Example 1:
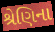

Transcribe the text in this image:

શ્રેણિના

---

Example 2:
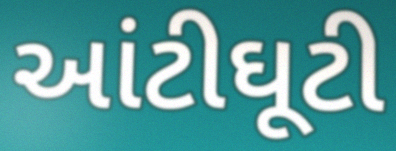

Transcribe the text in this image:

આંટીઘૂટી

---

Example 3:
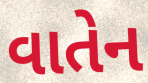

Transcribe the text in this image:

વાતેન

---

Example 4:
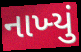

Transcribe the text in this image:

નાખ્‍યું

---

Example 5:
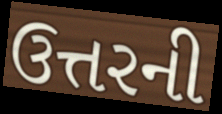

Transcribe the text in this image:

ઉત્તરની